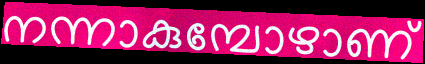
നന്നാകുമ്പോഴാണ്